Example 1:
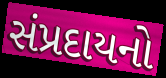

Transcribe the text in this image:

સંપ્રદાયનો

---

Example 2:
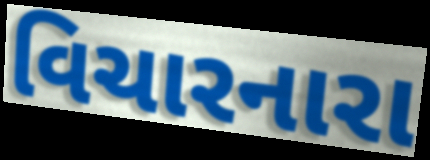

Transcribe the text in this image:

વિચારનારા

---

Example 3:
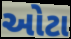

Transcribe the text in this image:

ઓટા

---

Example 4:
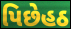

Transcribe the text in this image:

પિછેહઠ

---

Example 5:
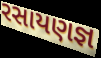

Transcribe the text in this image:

રસાયણજ્ઞ